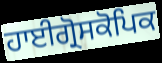
ਹਾਈਗ੍ਰੋਸਕੋਪਿਕ